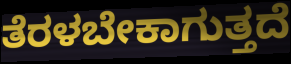
ತೆರಳಬೇಕಾಗುತ್ತದೆ